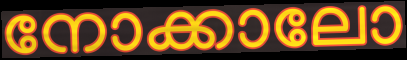
നോക്കാലോ